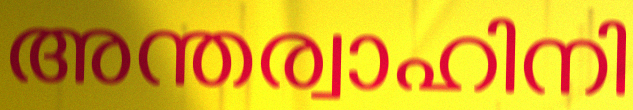
അന്തര്വാഹിനി